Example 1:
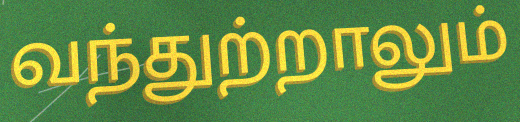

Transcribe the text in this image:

வந்துற்றாலும்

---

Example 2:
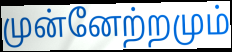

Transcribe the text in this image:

முன்னேற்றமும்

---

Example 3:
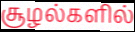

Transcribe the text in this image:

சூழல்களில்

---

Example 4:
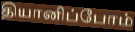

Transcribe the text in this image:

தியானிப்போம்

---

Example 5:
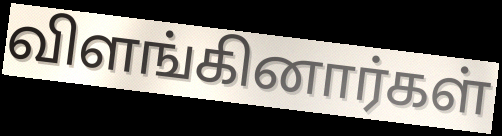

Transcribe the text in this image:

விளங்கினார்கள்